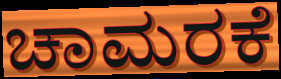
ಚಾಮರಕೆ